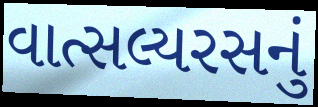
વાત્સલ્યરસનું